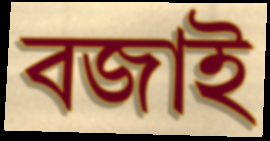
বজাই